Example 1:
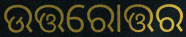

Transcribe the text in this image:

ଉତ୍ତରୋତ୍ତର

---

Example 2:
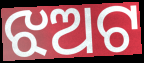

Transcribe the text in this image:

ଝଅଟ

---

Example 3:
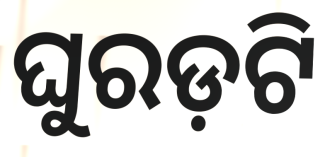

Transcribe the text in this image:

ଘୁରଡ଼ଟି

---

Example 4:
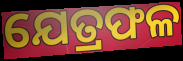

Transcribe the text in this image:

ଯେତ୍ରଫଳ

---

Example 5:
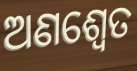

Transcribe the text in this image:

ଅଣଶ୍ୱେତ